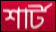
শার্ট